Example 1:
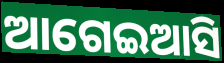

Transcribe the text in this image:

ଆଗେଇଆସି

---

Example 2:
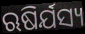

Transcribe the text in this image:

ଋଷିର୍ଯସ୍ୟ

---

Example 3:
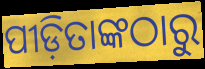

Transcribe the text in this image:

ପୀଡ଼ିତାଙ୍କଠାରୁ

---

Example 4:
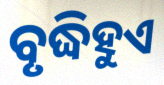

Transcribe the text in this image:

ବୃଦ୍ଧିହୁଏ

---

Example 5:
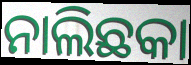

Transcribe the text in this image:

ନାଲିଛକା